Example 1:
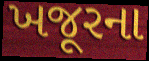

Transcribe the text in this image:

ખજૂરના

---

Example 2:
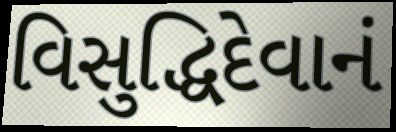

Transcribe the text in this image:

વિસુદ્ધિદેવાનં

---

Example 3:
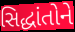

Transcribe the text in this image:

સિદ્ધાંતોને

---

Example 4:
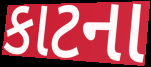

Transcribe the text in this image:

કાટના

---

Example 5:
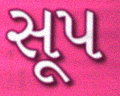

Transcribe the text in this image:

સૂપ